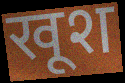
खूश